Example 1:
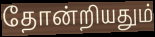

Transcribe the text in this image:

தோன்றியதும்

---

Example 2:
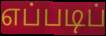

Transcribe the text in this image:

எப்படிப்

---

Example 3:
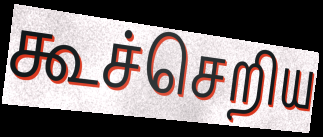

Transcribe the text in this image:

கூச்செறிய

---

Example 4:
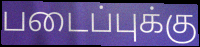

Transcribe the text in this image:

படைப்புக்கு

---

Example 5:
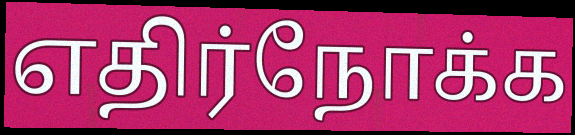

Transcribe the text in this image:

எதிர்நோக்க